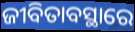
ଜୀବିତାବସ୍ଥାରେ